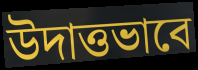
উদাত্তভাবে